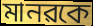
মানৱকে